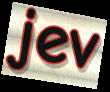
jev